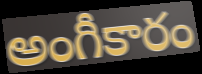
అంగీకారం